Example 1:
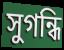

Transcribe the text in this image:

সুগন্ধি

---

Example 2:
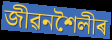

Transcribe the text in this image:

জীৱনশৈলীৰ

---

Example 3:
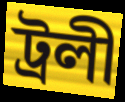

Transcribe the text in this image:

ট্ৰলী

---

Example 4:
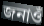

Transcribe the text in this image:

জনাওঁ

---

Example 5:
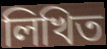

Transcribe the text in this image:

লিখিত